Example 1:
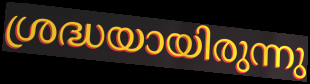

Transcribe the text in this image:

ശ്രദ്ധയായിരുന്നു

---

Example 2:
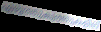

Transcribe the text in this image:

എഴുത്തുകുത്തുകളില്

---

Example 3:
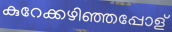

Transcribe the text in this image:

കുറേക്കഴിഞ്ഞപ്പോള്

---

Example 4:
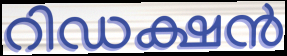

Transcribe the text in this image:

റിഡക്ഷൻ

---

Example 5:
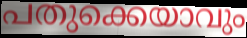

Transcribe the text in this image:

പതുക്കെയാവും